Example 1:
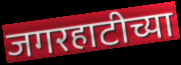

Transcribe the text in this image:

जगरहाटीच्या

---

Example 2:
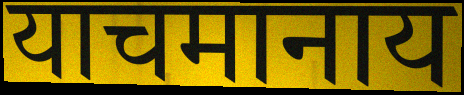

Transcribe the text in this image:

याचमानाय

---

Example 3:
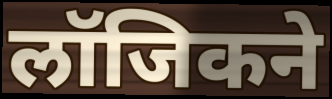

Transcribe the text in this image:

लॉजिकने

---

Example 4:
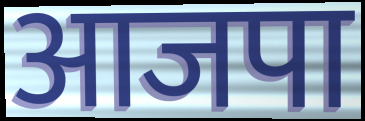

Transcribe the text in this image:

आजपा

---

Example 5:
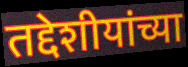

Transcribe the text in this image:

तद्देशीयांच्या